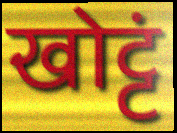
खोट्टं